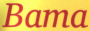
Bama